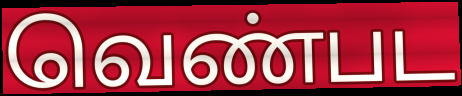
வெண்பட